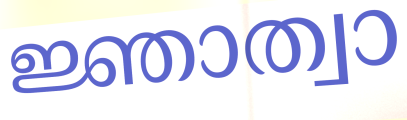
ജ്ഞാത്വാ